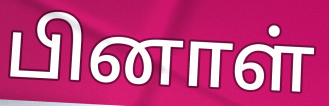
பினாள்